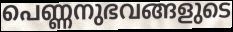
പെണ്ണനുഭവങ്ങളുടെ